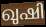
ഖുഷി